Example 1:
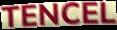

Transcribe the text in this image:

TENCEL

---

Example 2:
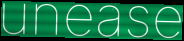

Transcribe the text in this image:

unease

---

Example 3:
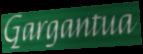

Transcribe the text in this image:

Gargantua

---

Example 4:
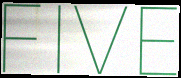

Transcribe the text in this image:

FIVE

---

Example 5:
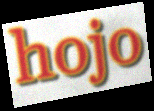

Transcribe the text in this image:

hojo